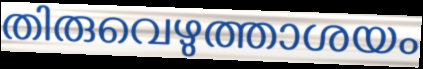
തിരുവെഴുത്താശയം